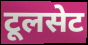
टूलसेट